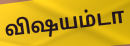
விஷயம்டா